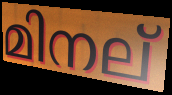
മിനല്